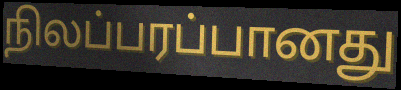
நிலப்பரப்பானது